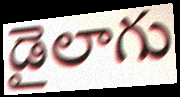
డైలాగు